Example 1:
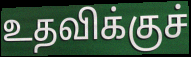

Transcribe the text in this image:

உதவிக்குச்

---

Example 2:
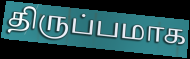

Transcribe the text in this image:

திருப்பமாக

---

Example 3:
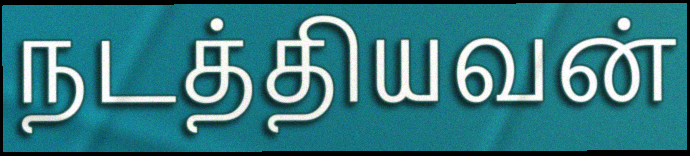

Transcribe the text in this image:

நடத்தியவன்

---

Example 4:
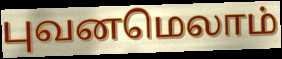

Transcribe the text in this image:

புவனமெலாம்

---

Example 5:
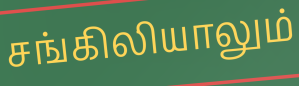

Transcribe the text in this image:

சங்கிலியாலும்